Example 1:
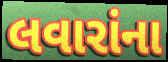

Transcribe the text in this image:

લવારાંના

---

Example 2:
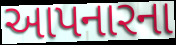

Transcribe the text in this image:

આપનારના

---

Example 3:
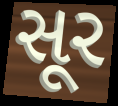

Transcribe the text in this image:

સૂર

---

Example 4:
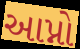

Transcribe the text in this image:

આપ્નો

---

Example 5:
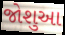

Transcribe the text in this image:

જોશુઆ